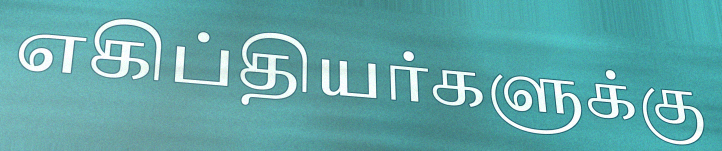
எகிப்தியர்களுக்கு